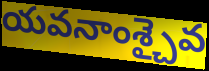
యవనాంశ్చైవ